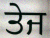
ਤੇਜ